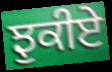
ਝੁਕੀਏ